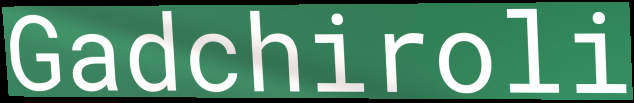
Gadchiroli